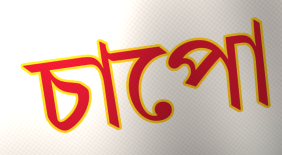
চাপো